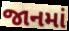
જાનમાં